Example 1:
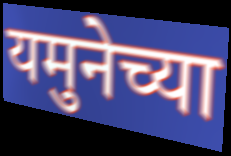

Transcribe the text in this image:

यमुनेच्या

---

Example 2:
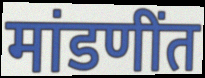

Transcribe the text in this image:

मांडणींत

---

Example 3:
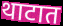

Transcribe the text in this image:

थाटात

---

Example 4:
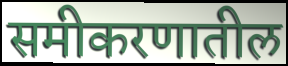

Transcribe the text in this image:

समीकरणातील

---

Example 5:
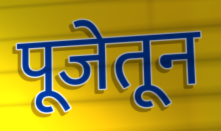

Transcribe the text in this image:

पूजेतून